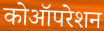
कोऑपरेशन